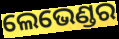
ଲେଭେଣ୍ଡର